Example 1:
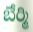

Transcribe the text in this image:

బేర్మి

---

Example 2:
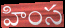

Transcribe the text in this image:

హింస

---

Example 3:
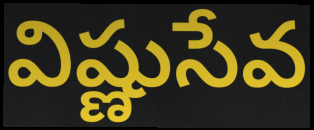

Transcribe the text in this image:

విష్ణుసేవ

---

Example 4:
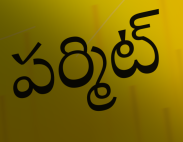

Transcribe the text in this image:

పర్మిట్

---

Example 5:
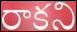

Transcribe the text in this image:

రాకని